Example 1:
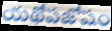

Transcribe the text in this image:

యథోపజోషం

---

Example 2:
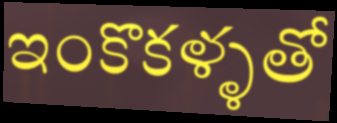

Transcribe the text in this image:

ఇంకొకళ్ళతో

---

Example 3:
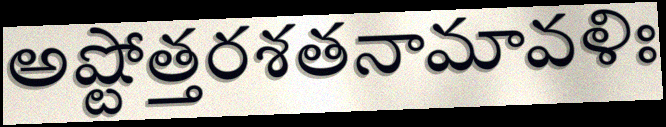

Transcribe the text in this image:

అష్టోత్తరశతనామావళిః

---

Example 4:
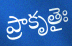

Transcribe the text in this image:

ప్రాకృతైః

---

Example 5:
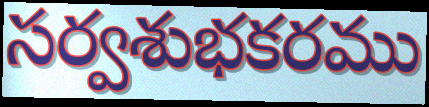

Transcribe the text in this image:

సర్వశుభకరము